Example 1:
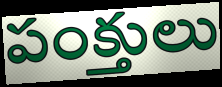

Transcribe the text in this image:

పంక్తులు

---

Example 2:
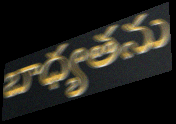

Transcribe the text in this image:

బాధ్యతను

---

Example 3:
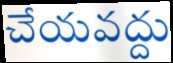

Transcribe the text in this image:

చేయవద్దు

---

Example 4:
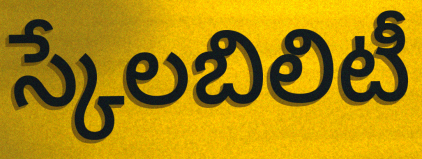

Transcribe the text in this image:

స్కేలబిలిటీ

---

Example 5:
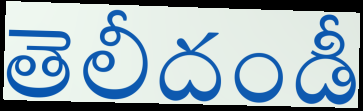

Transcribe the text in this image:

తెలీదండీ